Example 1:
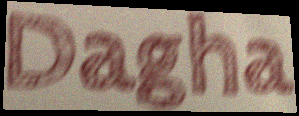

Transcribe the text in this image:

Dagha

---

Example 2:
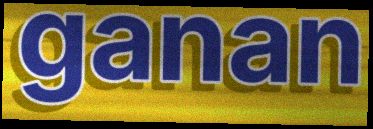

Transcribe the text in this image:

ganan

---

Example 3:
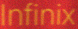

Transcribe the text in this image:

Infinix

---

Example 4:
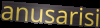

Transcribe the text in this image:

anusarisi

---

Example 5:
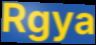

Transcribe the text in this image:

Rgya